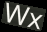
Wx